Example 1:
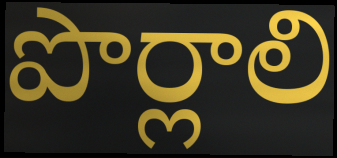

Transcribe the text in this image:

పొర్లాలి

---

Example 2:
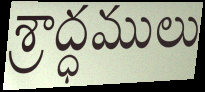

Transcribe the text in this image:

శ్రాద్ధములు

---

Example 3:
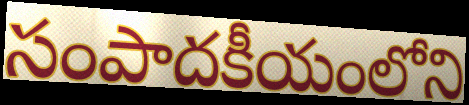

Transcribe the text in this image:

సంపాదకీయంలోని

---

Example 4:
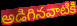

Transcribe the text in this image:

అడిగినవాటికి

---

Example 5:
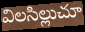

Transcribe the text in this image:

విలసిల్లుచూ